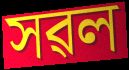
সৱল